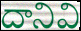
దానివి